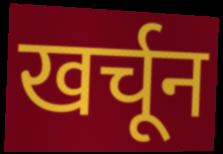
खर्चून